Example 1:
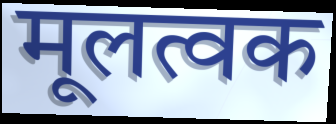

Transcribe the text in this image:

मूलत्वक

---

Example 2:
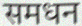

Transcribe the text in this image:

समधन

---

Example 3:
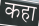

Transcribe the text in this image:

कहा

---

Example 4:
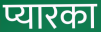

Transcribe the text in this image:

प्यारका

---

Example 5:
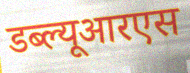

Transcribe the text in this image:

डब्ल्यूआरएस